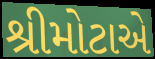
શ્રીમોટાએ